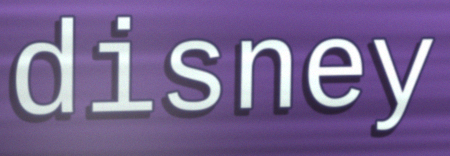
disney